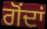
ਗੋਂਦਾਂ